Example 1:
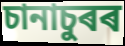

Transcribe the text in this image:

চানাচুৰৰ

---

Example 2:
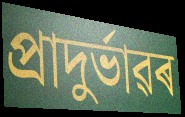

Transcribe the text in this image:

প্ৰাদুৰ্ভাৱৰ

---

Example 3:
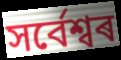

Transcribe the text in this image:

সৰ্বেশ্বৰ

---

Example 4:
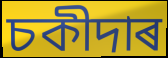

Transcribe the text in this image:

চকীদাৰ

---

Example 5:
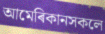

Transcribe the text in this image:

আমেৰিকানসকলে